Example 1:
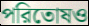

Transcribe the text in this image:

পরিতোষও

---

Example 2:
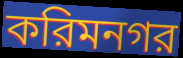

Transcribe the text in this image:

করিমনগর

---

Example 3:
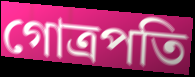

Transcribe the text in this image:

গোত্রপতি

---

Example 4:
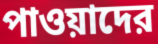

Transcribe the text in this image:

পাওয়াদের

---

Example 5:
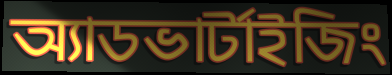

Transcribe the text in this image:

অ্যাডভার্টাইজিং